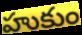
హుకుం